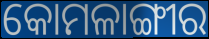
କୋମଳାଙ୍ଗୀର